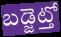
బడ్జెట్తో